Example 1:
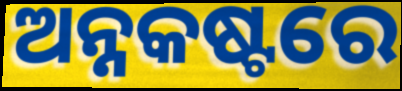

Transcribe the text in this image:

ଅନ୍ନକଷ୍ଟରେ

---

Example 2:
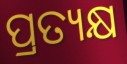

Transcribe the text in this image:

ପ୍ରତ୍ଯକ୍ଷ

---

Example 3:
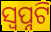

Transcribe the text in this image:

ସ୍ୱପ୍ନଟି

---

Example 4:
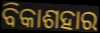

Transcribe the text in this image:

ବିକାଶହାର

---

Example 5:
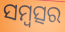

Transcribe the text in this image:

ସମ୍ବତ୍ସର